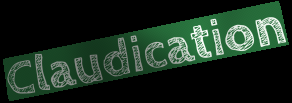
Claudication